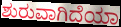
ಶುರುವಾಗಿದೆಯಾ